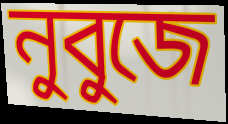
নুবুজে